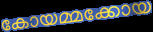
കോയമ്മക്കോയ